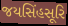
જયસિંહસૂરિ